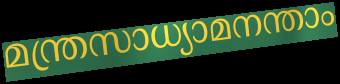
മന്ത്രസാധ്യാമനന്താം